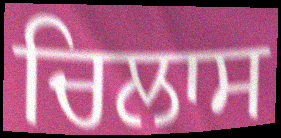
ਚਿਲਾਸ